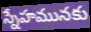
స్నేహమునకు